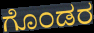
ಗೊಂಡರ